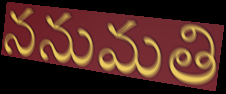
ననుమతి